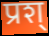
प्रश्